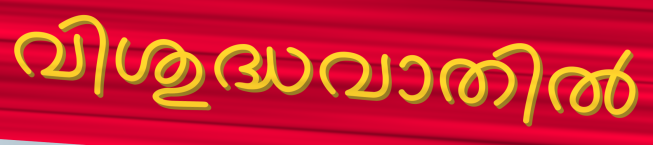
വിശുദ്ധവാതിൽ